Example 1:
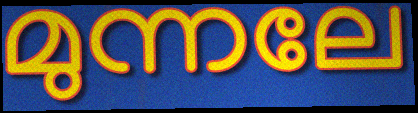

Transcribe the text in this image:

മുന്നലേ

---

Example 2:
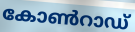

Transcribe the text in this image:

കോൺറാഡ്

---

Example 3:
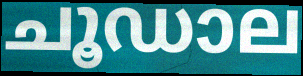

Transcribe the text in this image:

ചൂഡാല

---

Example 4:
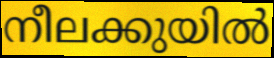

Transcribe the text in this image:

നീലക്കുയിൽ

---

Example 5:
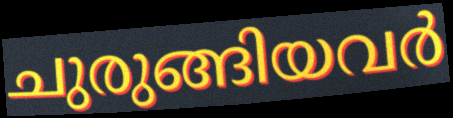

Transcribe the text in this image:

ചുരുങ്ങിയവർ